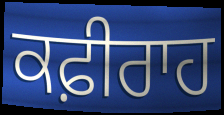
ਕਫ਼ੀਰਾਹ